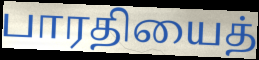
பாரதியைத்